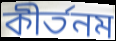
কীর্তনম